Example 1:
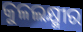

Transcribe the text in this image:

କୁଳଲକ୍ଷ୍ମୀର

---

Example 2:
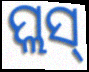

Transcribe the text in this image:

ପ୍ଲସ୍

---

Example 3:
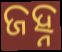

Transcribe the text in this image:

ଜହ୍ନ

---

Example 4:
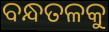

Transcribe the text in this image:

ବନ୍ଧତଳକୁ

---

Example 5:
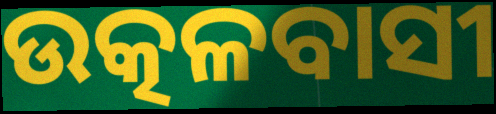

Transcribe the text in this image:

ଉତ୍କଳବାସୀ